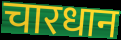
चारधान